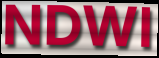
NDWI